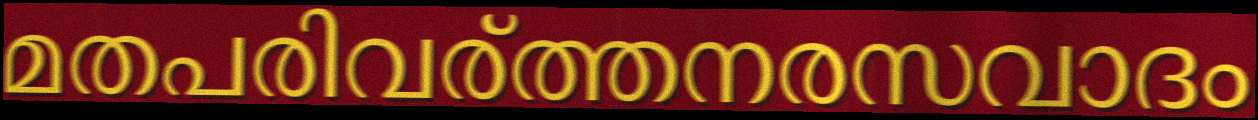
മതപരിവര്ത്തനരസവാദം